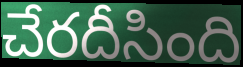
చేరదీసింది